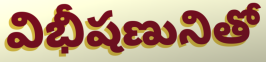
విభీషణునితో